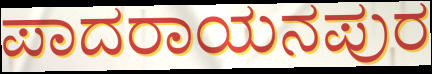
ಪಾದರಾಯನಪುರ